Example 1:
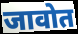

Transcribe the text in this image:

जावोत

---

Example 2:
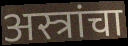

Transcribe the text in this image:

अस्त्रांचा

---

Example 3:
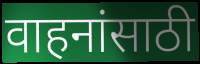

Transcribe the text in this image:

वाहनांसाठी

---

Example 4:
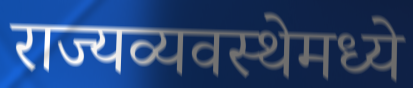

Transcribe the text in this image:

राज्यव्यवस्थेमध्ये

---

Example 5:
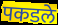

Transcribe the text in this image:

पकडले